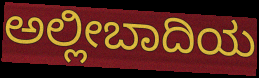
ಅಲ್ಲೀಬಾದಿಯ